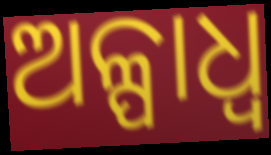
ଅଳ୍ପାଧ୍ଵ